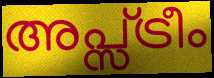
അപ്സ്ട്രീം